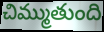
చిమ్ముతుంది